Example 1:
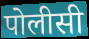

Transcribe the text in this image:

पोलीसी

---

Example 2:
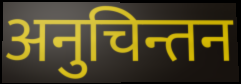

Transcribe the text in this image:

अनुचिन्तन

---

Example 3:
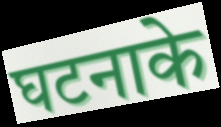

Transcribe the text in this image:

घटनाके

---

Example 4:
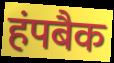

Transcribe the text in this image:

हंपबैक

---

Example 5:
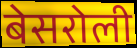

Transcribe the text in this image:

बेसरोली